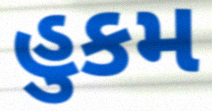
હુકમ